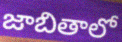
జాబితాలో